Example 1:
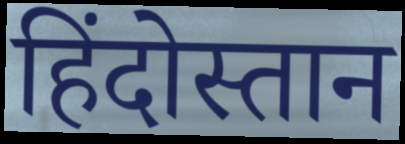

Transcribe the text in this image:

हिंदोस्तान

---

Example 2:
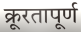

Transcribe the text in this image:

क्रूरतापूर्ण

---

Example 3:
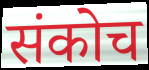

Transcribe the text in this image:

संकोच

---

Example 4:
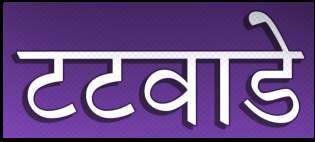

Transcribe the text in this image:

टटवाडे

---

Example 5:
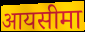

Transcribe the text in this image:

आयसीमा